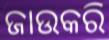
ଜାଉକରି